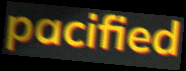
pacified